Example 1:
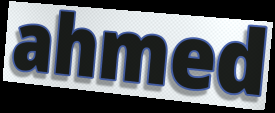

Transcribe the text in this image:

ahmed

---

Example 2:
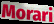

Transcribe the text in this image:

Morari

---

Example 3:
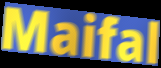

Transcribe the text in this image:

Maifal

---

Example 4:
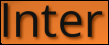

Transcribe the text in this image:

Inter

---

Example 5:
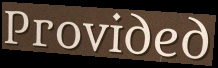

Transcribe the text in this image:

Provided